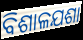
ବିଶାଳଯଶା